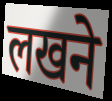
लखने